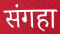
संगहा